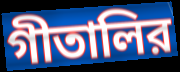
গীতালির